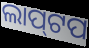
ଲାପ୍‌ଟପ